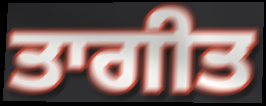
ਤਾਗੀਤ